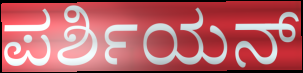
ಪರ್ಶಿಯನ್